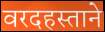
वरदहस्ताने